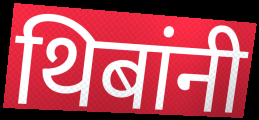
थिबांनी